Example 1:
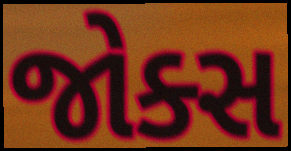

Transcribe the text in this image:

જોક્સ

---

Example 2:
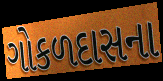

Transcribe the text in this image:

ગોકળદાસના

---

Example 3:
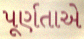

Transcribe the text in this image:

પૂર્ણતાએ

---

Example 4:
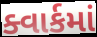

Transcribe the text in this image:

ક્વાર્કમાં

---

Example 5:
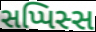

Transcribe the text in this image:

સપ્પિસ્સ